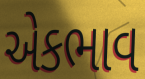
એકભાવ